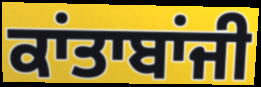
ਕਾਂਤਾਬਾਂਜੀ